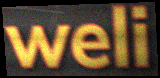
weli